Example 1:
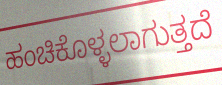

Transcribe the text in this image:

ಹಂಚಿಕೊಳ್ಳಲಾಗುತ್ತದೆ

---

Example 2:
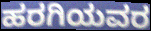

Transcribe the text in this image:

ಹರಗಿಯವರ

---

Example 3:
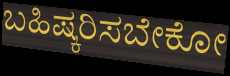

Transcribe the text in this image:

ಬಹಿಷ್ಕರಿಸಬೇಕೋ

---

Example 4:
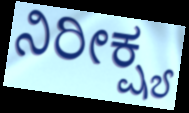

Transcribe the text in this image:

ನಿರೀಕ್ಷ್ಯ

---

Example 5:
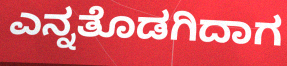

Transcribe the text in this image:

ಎನ್ನತೊಡಗಿದಾಗ